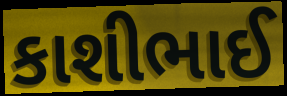
કાશીભાઈ